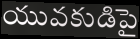
యువకుడిపై